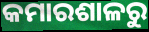
କମାରଶାଳରୁ